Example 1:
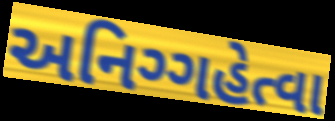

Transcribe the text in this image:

અનિગ્ગહેત્વા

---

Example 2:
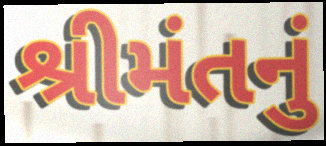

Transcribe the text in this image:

શ્રીમંતનું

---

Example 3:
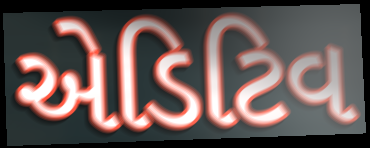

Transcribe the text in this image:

એડિટિવ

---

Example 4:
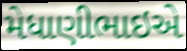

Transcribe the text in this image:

મેધાણીભાઇએ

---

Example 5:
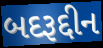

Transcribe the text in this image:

બદરૂદ્દીન